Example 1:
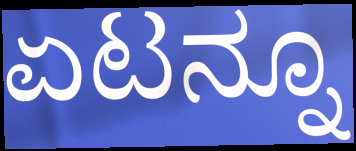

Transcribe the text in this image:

ಏಟನ್ನೂ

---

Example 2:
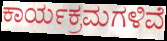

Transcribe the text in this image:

ಕಾರ್ಯಕ್ರಮಗಳಿವೆ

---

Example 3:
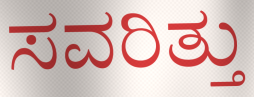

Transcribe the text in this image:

ಸವರಿತ್ತು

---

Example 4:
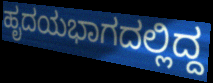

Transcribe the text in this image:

ಹೃದಯಭಾಗದಲ್ಲಿದ್ದ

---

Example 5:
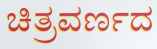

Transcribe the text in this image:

ಚಿತ್ರವರ್ಣದ